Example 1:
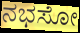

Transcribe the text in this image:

ನಭಸೋ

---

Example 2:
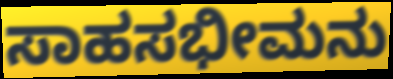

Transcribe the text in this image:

ಸಾಹಸಭೀಮನು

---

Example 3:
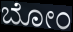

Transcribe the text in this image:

ಬೋಂ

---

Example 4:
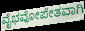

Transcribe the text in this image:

ವೈಭವೋಪೇತವಾಗಿ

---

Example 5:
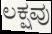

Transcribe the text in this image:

ಲಕ್ಷವು